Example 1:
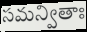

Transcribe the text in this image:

సమన్వితాః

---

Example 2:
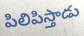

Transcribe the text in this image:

పిలిపిస్తాడు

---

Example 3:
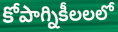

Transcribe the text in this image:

కోపాగ్నికీలలలో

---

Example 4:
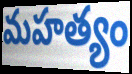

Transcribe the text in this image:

మహత్యం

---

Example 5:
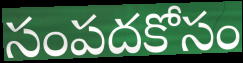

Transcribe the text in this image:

సంపదకోసం